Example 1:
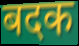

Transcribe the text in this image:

बदक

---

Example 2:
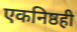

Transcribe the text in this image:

एकनिष्ठही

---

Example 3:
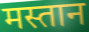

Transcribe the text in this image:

मस्तान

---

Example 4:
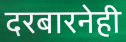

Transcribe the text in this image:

दरबारनेही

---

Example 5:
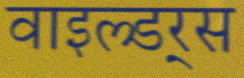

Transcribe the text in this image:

वाइल्डर्स